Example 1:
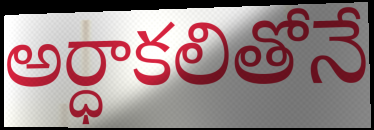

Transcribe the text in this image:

అర్ధాకలితోనే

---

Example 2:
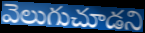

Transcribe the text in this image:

వెలుగుచూడని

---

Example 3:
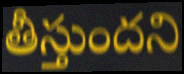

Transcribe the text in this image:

తీస్తుందని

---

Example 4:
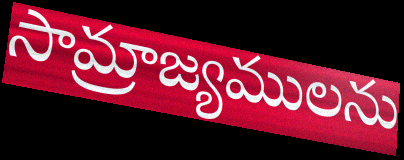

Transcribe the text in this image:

సామ్రాజ్యములను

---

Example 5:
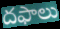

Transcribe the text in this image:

దఫాలు